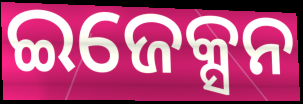
ଇଜେକ୍ସନ